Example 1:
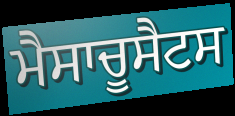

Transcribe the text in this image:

ਮੈਸਾਚੂਸੈਟਸ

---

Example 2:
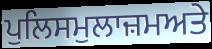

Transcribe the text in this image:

ਪੁਲਿਸਮੁਲਾਜ਼ਮਅਤੇ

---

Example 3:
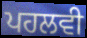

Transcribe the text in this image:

ਪਹਲਵੀ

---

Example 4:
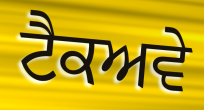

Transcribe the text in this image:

ਟੈਕਅਵੇ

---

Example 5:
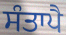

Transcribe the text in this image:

ਸੰਤਾਪੈ